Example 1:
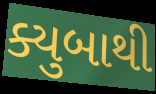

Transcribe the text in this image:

ક્યુબાથી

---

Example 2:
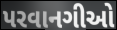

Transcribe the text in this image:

પરવાનગીઓ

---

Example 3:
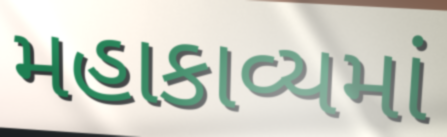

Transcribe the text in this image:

મહાકાવ્યમાં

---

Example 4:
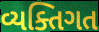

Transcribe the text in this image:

વ્યક્તિગત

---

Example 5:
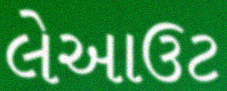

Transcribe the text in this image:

લેઆઉટ